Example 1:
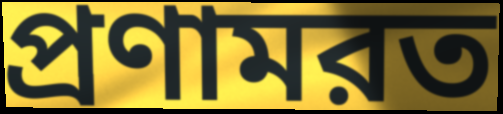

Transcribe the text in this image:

প্রণামরত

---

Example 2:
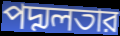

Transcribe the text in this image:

পদ্মলতার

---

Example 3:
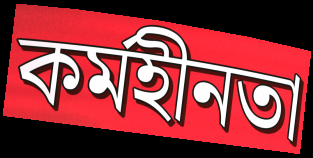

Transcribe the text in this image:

কর্মহীনতা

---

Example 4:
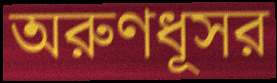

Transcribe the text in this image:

অরুণধূসর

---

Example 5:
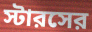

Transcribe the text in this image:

স্টারসের